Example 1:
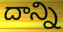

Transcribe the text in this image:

దాన్ని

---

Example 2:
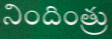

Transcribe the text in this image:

నిందింత్రు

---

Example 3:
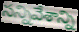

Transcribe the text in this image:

సన్నివేశాన్ని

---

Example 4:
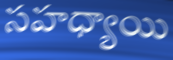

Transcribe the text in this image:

సహధ్యాయి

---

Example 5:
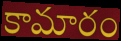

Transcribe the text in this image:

కామారం